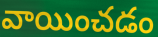
వాయించడం